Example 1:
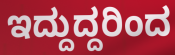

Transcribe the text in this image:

ಇದ್ದುದ್ದರಿಂದ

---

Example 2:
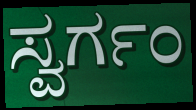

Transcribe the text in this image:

ಸ್ವರ್ಗಂ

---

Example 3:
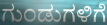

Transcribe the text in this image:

ಗುಂಡುಗಳಿಗೆ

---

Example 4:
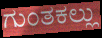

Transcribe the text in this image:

ಗುಂತಕಲ್ಲು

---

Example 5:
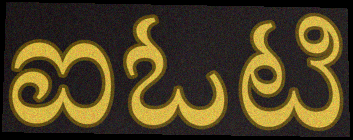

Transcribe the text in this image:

ಐಓಟಿ